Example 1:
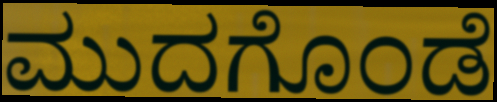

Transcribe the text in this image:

ಮುದಗೊಂಡೆ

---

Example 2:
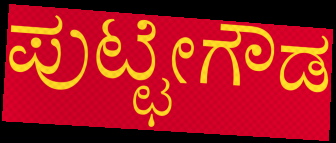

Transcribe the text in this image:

ಪುಟ್ಟೇಗೌಡ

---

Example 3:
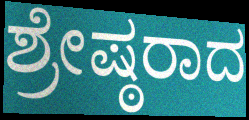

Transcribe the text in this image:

ಶ್ರೇಷ್ಠರಾದ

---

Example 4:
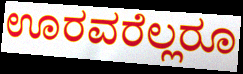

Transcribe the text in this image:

ಊರವರೆಲ್ಲರೂ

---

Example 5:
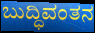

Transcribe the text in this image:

ಬುದ್ಧಿವಂತನ